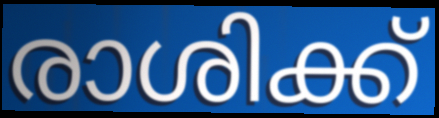
രാശിക്ക്